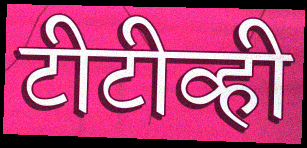
टीटीव्ही